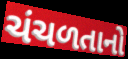
ચંચળતાનો